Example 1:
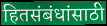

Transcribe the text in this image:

हितसंबंधांसाठी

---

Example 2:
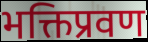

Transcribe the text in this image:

भक्तिप्रवण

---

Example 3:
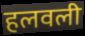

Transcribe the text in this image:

हलवली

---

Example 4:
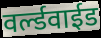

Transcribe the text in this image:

वर्ल्डवाईड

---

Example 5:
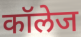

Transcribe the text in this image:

कॉलेज